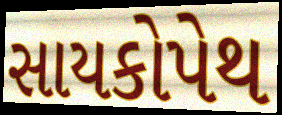
સાયકોપેથ